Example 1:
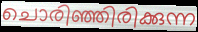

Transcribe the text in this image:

ചൊരിഞ്ഞിരിക്കുന്ന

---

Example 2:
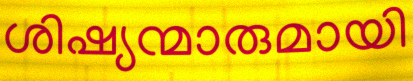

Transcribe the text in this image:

ശിഷ്യന്മാരുമായി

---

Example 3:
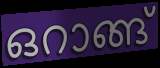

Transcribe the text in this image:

ഒറാങ്ങ്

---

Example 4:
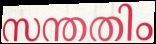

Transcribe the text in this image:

സന്തതിം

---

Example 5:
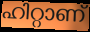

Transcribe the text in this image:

ഹിറ്റാണ്